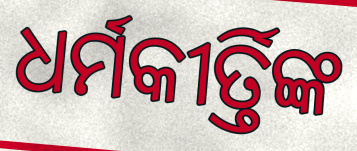
ଧର୍ମକୀର୍ତ୍ତିଙ୍କ